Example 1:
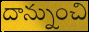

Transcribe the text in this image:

దాన్నుంచి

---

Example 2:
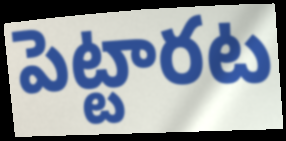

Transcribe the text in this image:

పెట్టారట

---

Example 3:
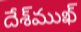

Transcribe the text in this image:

దేశ్‌ముఖ్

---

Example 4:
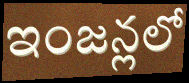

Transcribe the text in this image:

ఇంజన్లలో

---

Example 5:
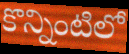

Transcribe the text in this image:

కొన్నింటిలో